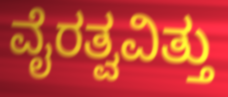
ವೈರತ್ವವಿತ್ತು